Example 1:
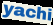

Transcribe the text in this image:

yachi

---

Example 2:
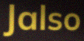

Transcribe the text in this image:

Jalso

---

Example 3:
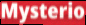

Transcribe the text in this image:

Mysterio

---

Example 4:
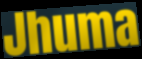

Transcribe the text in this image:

Jhuma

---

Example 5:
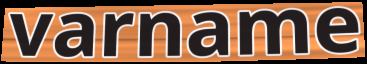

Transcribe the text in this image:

varname